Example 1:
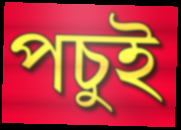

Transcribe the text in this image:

পচুই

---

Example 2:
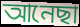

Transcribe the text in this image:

আনেছা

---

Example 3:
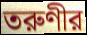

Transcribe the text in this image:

তরুণীর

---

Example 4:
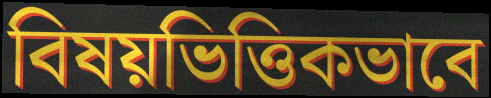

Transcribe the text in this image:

বিষয়ভিত্তিকভাবে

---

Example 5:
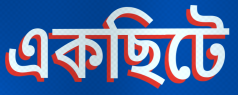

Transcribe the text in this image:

একছিটে